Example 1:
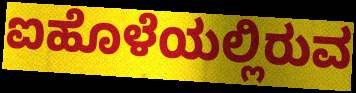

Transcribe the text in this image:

ಐಹೊಳೆಯಲ್ಲಿರುವ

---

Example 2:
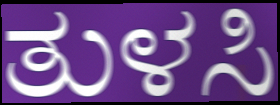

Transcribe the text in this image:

ತುಳಸಿ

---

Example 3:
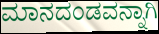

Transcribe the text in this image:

ಮಾನದಂಡವನ್ನಾಗಿ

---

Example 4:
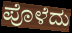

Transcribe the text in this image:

ಪೊಳೆದು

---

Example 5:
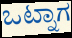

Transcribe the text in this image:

ಒಟ್ನಾಗ